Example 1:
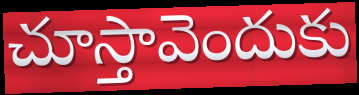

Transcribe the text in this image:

చూస్తావెందుకు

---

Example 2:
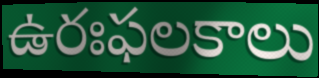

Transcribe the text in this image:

ఉరఃఫలకాలు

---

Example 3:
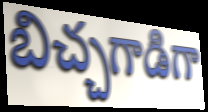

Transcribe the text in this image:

బిచ్చగాడిగా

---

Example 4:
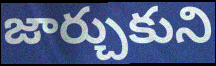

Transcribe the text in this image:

జార్చుకుని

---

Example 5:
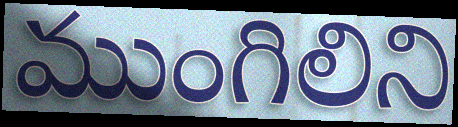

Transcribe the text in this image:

ముంగిలిని